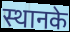
स्थानके